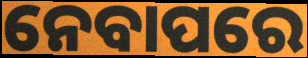
ନେବାପରେ